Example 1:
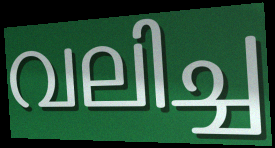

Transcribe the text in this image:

വലിച്ച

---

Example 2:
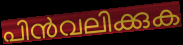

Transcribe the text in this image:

പിൻവലിക്കുക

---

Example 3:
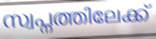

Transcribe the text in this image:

സ്വപ്നത്തിലേക്ക്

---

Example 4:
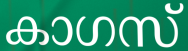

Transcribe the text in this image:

കാഗസ്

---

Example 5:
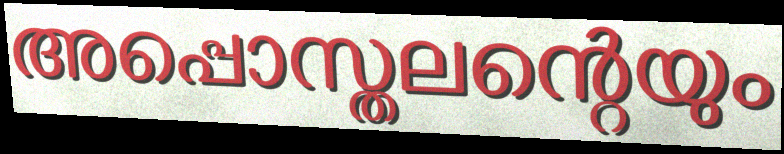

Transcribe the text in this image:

അപ്പൊസ്തലന്റെയും